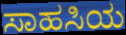
ಸಾಹಸಿಯ